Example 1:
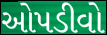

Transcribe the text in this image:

ઓપડીવો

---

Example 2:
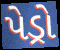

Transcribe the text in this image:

પેડ્રો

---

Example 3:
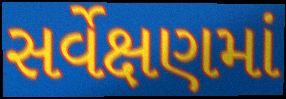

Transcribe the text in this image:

સર્વેક્ષણમાં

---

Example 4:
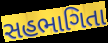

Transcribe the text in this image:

સહભાગિતા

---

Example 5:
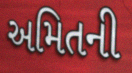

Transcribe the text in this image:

અમિતની